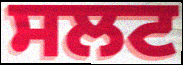
ਸਲਟ